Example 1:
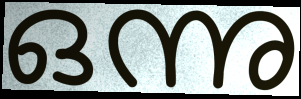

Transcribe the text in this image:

ഒന്നു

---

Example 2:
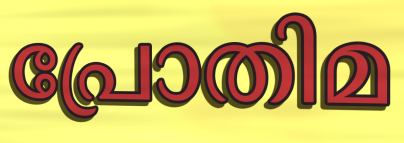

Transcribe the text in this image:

പ്രോതിമ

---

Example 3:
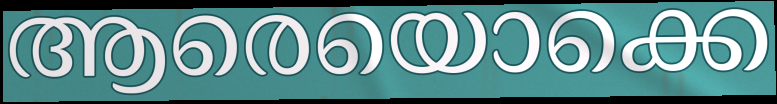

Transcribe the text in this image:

ആരെയൊക്കെ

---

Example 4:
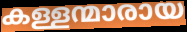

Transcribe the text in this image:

കള്ളന്മാരായ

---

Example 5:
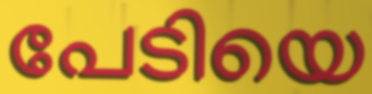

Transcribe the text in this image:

പേടിയെ